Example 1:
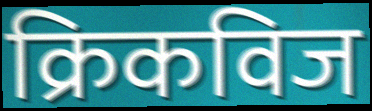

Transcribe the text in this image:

क्रिकविज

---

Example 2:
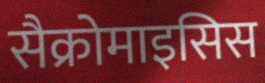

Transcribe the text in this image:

सैक्रोमाइसिस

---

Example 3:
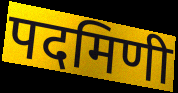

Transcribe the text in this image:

पदमिणी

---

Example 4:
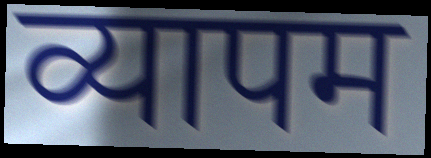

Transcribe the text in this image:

व्यापम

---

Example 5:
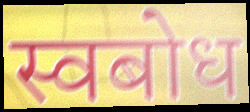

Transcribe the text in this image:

स्वबोध